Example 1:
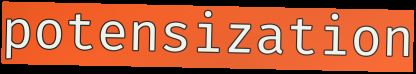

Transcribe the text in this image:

potensization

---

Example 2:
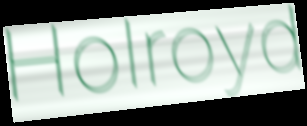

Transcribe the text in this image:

Holroyd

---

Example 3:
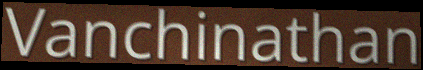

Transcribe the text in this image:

Vanchinathan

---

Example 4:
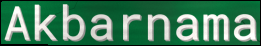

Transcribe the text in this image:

Akbarnama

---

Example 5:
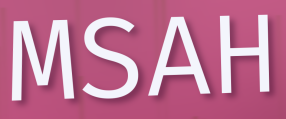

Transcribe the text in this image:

MSAH